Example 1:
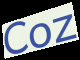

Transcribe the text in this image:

Coz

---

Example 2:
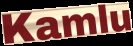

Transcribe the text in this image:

Kamlu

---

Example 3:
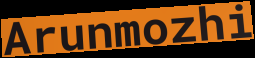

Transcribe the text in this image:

Arunmozhi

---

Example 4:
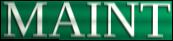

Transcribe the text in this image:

MAINT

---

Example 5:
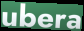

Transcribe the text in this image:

ubera